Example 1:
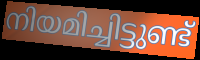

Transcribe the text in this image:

നിയമിച്ചിട്ടുണ്ട്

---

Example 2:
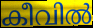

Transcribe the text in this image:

കീവിൽ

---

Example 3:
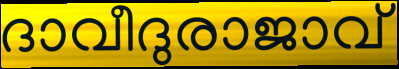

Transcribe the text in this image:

ദാവീദുരാജാവ്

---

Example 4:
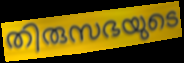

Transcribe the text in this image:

തിരുസഭയുടെ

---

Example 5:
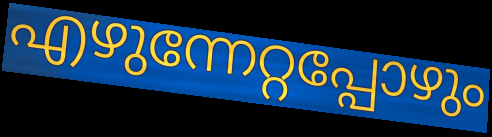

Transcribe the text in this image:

എഴുന്നേറ്റപ്പോഴും